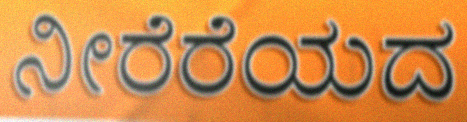
ನೀರೆರೆಯದ